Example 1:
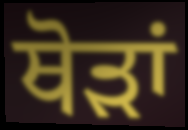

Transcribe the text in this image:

ਥੋੜਾਂ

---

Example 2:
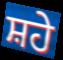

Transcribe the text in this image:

ਸ਼ਹੇ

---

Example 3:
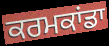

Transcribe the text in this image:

ਕਰਮਕਾਂਡਾ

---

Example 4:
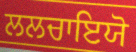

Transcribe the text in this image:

ਲਲਚਾਇਯੋ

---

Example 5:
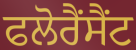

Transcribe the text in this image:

ਫਲੋਰੈਂਸੈਂਟ